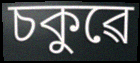
চকুৱে